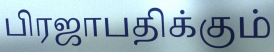
பிரஜாபதிக்கும்